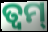
ତ୍ଵମ୍